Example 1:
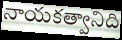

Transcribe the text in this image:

నాయకత్వానిది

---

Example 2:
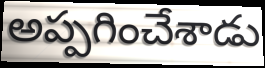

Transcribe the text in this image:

అప్పగించేశాడు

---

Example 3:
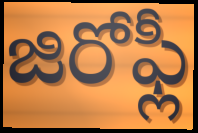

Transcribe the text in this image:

జిరోఫ్లీ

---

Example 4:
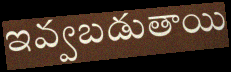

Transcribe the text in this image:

ఇవ్వబడుతాయి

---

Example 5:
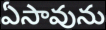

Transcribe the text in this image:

ఏసావును